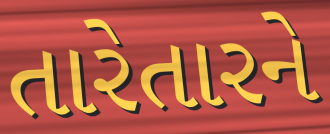
તારેતારને